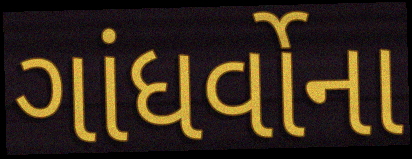
ગાંધર્વોના